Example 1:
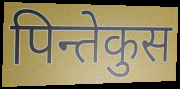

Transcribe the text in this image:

पिन्तेकुस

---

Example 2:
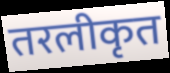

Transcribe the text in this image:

तरलीकृत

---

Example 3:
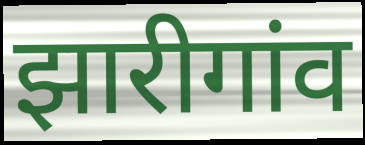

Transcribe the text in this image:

झारीगांव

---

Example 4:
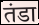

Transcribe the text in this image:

तंडा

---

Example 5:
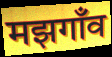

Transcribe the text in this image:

मझगाँव